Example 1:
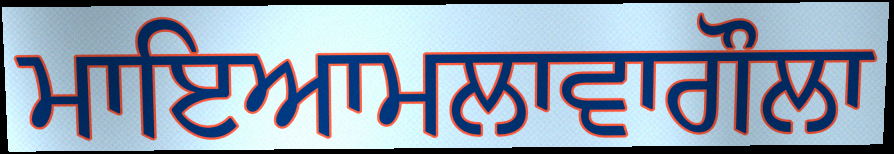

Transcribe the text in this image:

ਮਾਇਆਮਲਾਵਾਗੌਲਾ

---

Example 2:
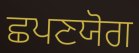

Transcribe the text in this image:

ਛਪਣਯੋਗ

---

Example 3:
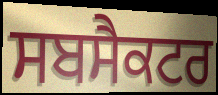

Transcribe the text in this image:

ਸਬਸੈਕਟਰ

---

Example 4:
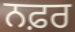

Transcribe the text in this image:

ਨਫ਼ਰ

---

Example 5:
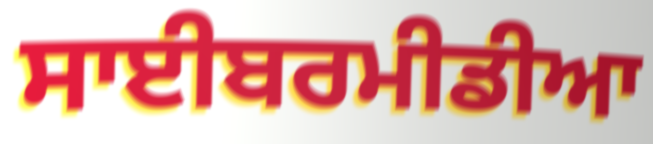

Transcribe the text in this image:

ਸਾਈਬਰਮੀਡੀਆ